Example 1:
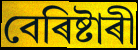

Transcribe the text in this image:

বেৰিষ্টাৰী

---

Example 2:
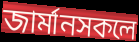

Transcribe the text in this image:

জাৰ্মানসকলে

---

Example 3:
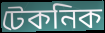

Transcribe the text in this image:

টেকনিক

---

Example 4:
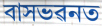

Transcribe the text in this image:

বাসভৱনত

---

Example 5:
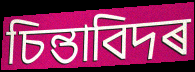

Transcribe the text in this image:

চিন্তাবিদৰ